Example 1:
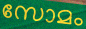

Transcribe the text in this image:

സോമം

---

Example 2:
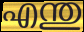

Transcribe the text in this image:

എന്തു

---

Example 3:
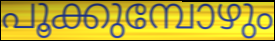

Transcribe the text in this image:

പൂക്കുമ്പോഴും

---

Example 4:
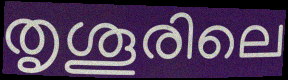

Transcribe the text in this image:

തൃശൂരിലെ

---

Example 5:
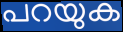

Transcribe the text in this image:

പറയുക